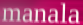
manala